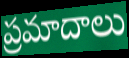
ప్రమాదాలు